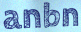
anbn